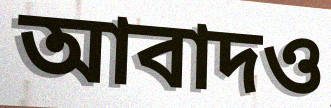
আবাদও